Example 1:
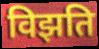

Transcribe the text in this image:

विझति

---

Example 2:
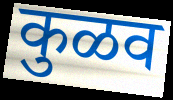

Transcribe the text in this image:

कुळव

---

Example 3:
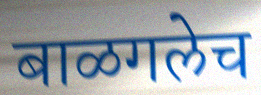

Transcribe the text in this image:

बाळगलेच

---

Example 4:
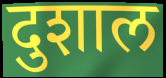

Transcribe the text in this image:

दुशाल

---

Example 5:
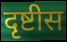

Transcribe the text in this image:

दृष्टीस